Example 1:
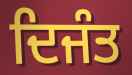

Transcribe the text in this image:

ਦਿਜੰਤ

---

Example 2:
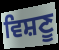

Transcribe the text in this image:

ਵਿਸ਼ਣੂ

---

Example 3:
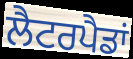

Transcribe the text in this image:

ਲੈਟਰਪੈਡਾਂ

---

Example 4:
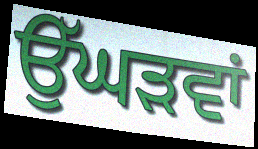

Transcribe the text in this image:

ਉੱਘੜਵਾਂ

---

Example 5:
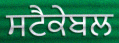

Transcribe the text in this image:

ਸਟੈਕੇਬਲ